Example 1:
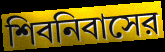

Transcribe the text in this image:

শিবনিবাসের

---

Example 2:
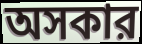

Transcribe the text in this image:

অসকার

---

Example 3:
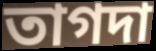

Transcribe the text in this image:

তাগদা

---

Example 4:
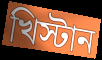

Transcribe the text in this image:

খিস্টান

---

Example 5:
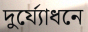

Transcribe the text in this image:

দুর্য্যোধনে